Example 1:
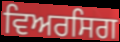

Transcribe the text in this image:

ਵਿਅਰਸਿਗ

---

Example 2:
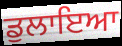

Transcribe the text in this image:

ਡੁਲਾਇਆ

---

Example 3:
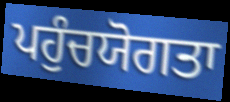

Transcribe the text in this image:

ਪਹੁੰਚਯੋਗਤਾ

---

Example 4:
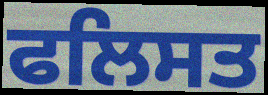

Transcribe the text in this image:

ਫਲਿਸਤ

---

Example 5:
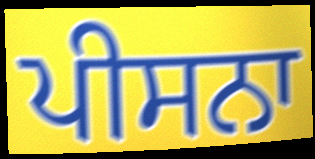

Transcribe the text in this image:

ਪੀਸਨਾ